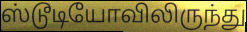
ஸ்டூடியோவிலிருந்து